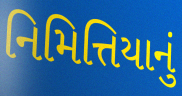
નિમિત્તિયાનું